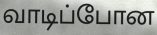
வாடிப்போன